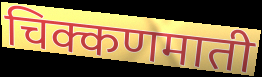
चिक्कणमाती